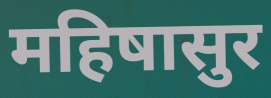
महिषासुर